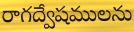
రాగద్వేషములను